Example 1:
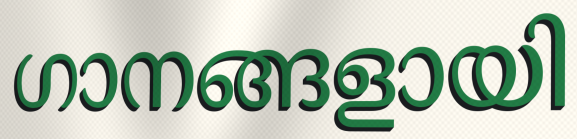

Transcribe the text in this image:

ഗാനങ്ങളായി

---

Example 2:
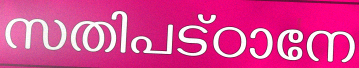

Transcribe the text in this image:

സതിപട്ഠാനേ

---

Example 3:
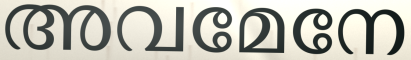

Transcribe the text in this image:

അവമേനേ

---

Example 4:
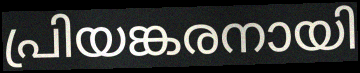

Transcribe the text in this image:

പ്രിയങ്കരനായി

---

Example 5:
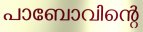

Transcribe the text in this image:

പാബോവിന്റെ